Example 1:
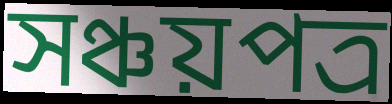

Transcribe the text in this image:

সঞ্চয়পত্র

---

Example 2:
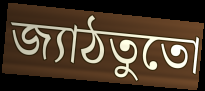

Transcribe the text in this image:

জ্যাঠতুতো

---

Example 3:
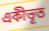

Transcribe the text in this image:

একীভূত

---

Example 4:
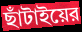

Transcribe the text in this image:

ছাঁটাইয়ের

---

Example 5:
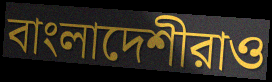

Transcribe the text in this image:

বাংলাদেশীরাও